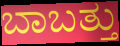
ಬಾಬತ್ತು